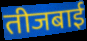
तीजबाई